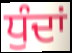
ਧੁੰਦਾਂ